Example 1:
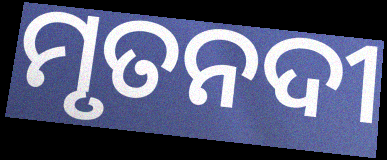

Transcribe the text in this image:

ମୃତନଦୀ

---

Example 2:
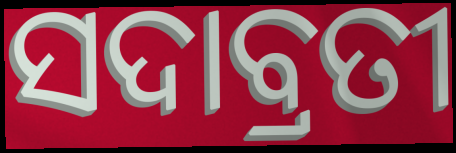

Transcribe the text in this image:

ସଦାବ୍ରତୀ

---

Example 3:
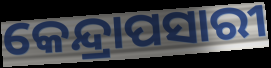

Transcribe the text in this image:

କେନ୍ଦ୍ରାପସାରୀ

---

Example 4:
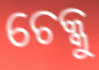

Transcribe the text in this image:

ଚେକ୍କୁ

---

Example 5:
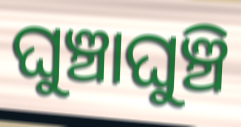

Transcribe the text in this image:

ଘୁଞ୍ଚାଘୁଞ୍ଚି